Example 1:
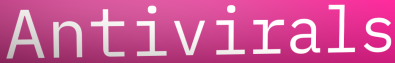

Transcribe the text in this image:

Antivirals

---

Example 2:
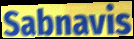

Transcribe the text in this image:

Sabnavis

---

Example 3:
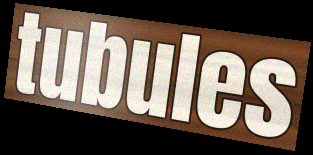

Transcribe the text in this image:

tubules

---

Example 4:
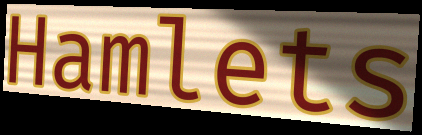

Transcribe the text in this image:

Hamlets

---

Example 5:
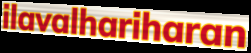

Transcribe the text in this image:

ilavalhariharan